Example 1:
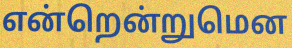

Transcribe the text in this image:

என்றென்றுமென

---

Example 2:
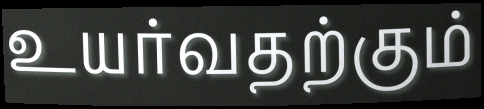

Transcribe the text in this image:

உயர்வதற்கும்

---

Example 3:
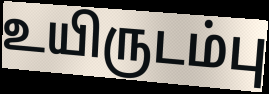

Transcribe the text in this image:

உயிருடம்பு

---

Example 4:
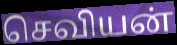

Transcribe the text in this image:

செவியன்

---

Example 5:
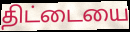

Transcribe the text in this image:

திட்டையை